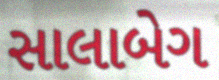
સાલાબેગ